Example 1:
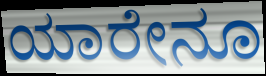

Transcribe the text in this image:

ಯಾರೇನೂ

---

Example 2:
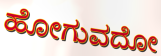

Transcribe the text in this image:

ಹೋಗುವದೋ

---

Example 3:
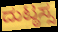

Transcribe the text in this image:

ದುಟ್ಠಸ್ಸ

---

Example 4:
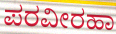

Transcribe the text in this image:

ಪರವೀರಹಾ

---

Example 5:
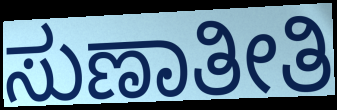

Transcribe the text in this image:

ಸುಣಾತೀತಿ